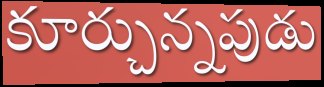
కూర్చున్నపుడు